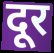
दूर